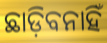
ଛାଡ଼ିବନାହିଁ